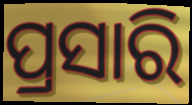
ପ୍ରସାରି